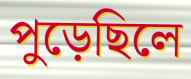
পুড়েছিলে